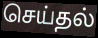
செய்தல்